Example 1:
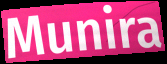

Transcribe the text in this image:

Munira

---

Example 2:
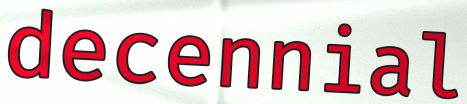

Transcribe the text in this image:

decennial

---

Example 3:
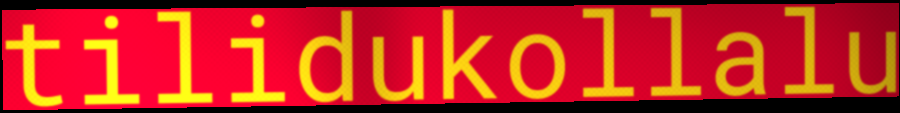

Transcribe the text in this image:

tilidukollalu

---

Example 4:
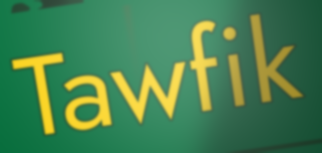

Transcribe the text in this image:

Tawfik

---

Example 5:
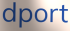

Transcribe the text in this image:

dport